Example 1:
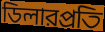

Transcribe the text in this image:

ডিলারপ্রতি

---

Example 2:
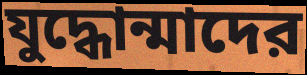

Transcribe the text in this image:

যুদ্ধোন্মাদের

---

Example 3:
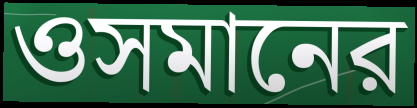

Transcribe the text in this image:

ওসমানের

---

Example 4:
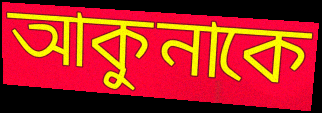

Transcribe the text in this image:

আকুনাকে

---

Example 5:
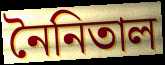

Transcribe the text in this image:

নৈনিতাল